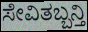
ಸೇವಿತಬ್ಬನ್ತಿ